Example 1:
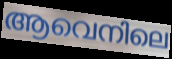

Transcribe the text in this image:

ആവെനിലെ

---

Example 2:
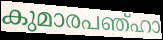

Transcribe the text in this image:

കുമാരപഞ്ഹാ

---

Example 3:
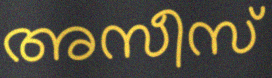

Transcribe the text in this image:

അസീസ്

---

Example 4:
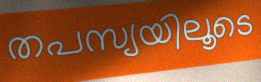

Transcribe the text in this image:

തപസ്യയിലൂടെ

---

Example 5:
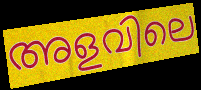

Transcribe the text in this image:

അളവിലെ